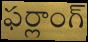
ఫర్లాంగ్